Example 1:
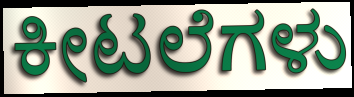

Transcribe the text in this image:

ಕೀಟಲೆಗಳು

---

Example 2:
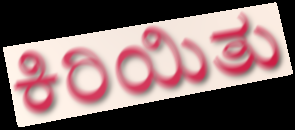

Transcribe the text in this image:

ಕಿರಿಯಿತು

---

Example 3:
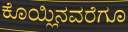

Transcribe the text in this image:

ಕೊಯ್ಲಿನವರೆಗೂ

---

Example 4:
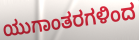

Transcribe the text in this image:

ಯುಗಾಂತರಗಳಿಂದ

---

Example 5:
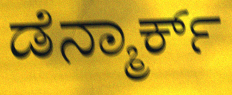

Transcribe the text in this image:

ಡೆನ್ಮಾರ್ಕ್